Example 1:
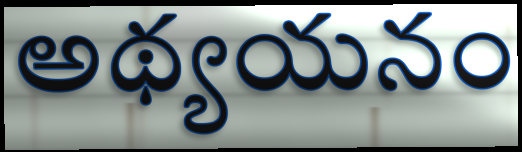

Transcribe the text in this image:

అథ్యయనం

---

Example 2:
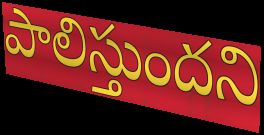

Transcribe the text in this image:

పాలిస్తుందని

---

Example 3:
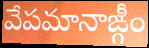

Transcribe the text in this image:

వేపమానాఙ్గీం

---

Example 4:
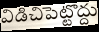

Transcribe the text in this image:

విడిచిపెట్టొద్దు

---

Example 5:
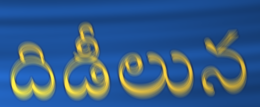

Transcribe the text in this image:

దిడీలున